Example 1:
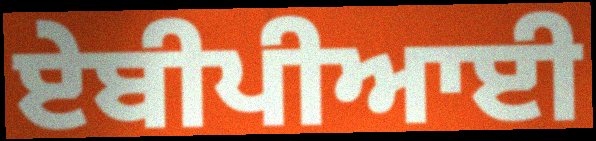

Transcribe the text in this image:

ਏਬੀਪੀਆਈ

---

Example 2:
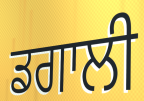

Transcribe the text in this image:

ਡਗਾਲੀ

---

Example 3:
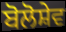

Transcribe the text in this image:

ਬੋਲੋਸ਼ੇਵ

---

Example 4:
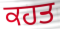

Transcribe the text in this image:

ਕਹਤ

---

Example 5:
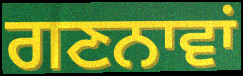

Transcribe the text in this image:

ਗਣਨਾਵਾਂ